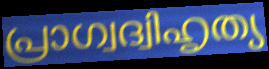
പ്രാഗ്വദ്വിഹൃത്യ